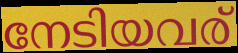
നേടിയവര്